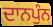
ਦਾਨਪੁੰਨ